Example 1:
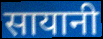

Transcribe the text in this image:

सायानी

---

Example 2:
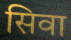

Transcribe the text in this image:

सिवा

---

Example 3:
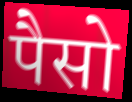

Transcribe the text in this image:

पैसो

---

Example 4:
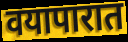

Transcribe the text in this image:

वयापारात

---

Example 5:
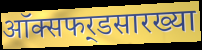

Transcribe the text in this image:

ऑक्सफर्डसारख्या